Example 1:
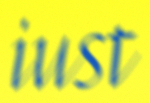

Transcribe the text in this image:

iust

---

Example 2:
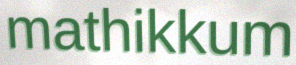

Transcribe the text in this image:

mathikkum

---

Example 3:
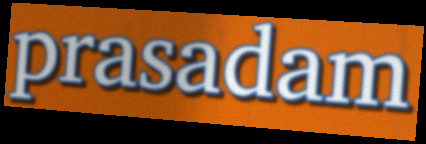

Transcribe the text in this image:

prasadam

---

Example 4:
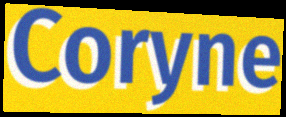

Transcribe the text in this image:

Coryne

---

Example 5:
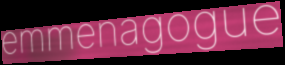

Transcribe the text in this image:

emmenagogue